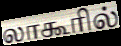
லாகூரில்